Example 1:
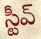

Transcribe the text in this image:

స్టీవ్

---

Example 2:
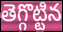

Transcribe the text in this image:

తెగ్గొట్టిన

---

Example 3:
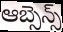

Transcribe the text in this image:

ఆబ్సెన్స్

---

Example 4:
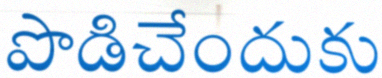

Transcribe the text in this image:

పొడిచేందుకు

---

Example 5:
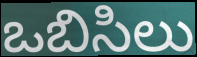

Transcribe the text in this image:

ఒబిసిలు